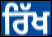
ਰਿੱਖ